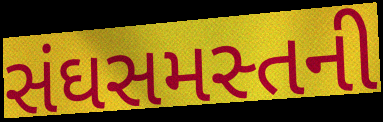
સંઘસમસ્તની